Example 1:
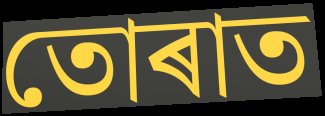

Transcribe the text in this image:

তোৰাত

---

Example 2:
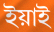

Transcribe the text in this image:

ইয়াই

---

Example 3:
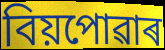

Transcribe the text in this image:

বিয়পোৱাৰ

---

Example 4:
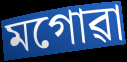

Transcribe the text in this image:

মগোৱা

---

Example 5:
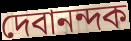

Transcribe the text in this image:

দেবানন্দক